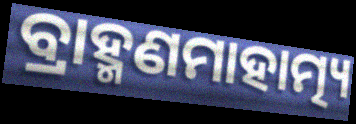
ବ୍ରାହ୍ମଣମାହାତ୍ମ୍ୟ